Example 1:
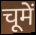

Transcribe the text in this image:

चूमें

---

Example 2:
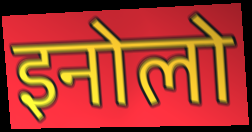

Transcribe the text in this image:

इनोलो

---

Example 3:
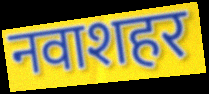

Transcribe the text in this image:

नवाशहर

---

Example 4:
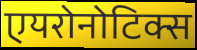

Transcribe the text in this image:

एयरोनोटिक्स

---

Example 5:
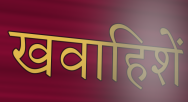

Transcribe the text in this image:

खवाहिशें